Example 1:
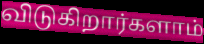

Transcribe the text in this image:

விடுகிறார்களாம்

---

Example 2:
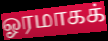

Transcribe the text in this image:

ஓரமாகக்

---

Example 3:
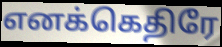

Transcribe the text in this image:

எனக்கெதிரே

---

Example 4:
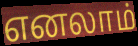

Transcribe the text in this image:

எனலாம்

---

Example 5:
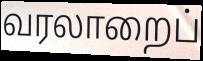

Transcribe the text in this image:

வரலாறைப்